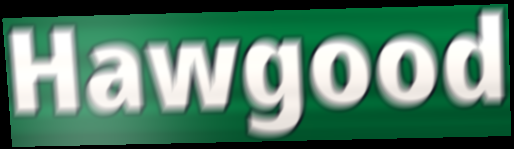
Hawgood